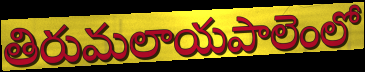
తిరుమలాయపాలెంలో